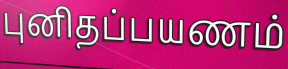
புனிதப்பயணம்